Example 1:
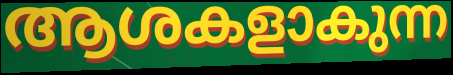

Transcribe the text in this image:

ആശകളാകുന്ന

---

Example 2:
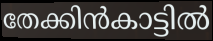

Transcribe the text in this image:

തേക്കിൻകാട്ടിൽ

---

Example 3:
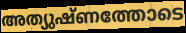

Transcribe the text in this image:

അത്യുഷ്ണത്തോടെ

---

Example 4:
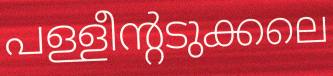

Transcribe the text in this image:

പള്ളീന്റടുക്കലെ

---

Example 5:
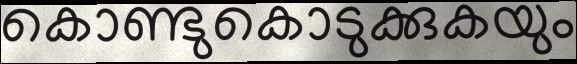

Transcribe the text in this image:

കൊണ്ടുകൊടുക്കുകയും